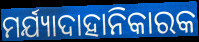
ମର୍ଯ୍ୟାଦାହାନିକାରକ